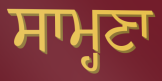
ਸਾਮ੍ਹਣਾ